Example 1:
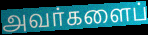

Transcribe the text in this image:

அவர்களைப்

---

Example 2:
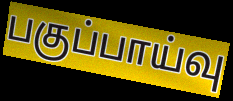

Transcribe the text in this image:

பகுப்பாய்வு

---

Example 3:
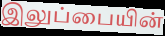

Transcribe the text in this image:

இலுப்பையின்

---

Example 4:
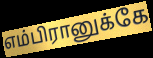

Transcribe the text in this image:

எம்பிரானுக்கே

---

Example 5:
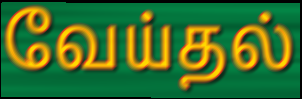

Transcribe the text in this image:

வேய்தல்